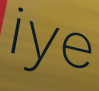
iye